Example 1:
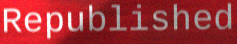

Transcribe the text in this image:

Republished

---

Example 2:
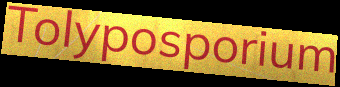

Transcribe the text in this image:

Tolyposporium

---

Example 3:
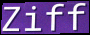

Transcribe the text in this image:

Ziff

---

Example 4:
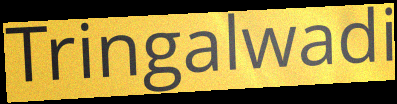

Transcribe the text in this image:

Tringalwadi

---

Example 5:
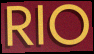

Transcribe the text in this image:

RIO